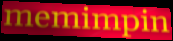
memimpin